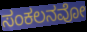
ಸಂಕಲನವೋ